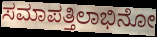
ಸಮಾಪತ್ತಿಲಾಭಿನೋ